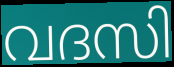
വദസി